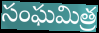
సంఘమిత్ర